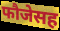
फौजेसह